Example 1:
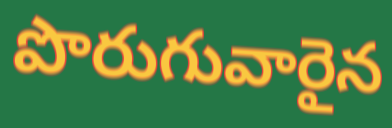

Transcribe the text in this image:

పొరుగువారైన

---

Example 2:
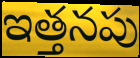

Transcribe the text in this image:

ఇత్తనపు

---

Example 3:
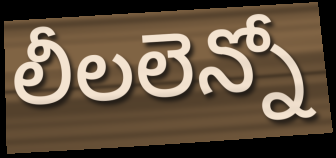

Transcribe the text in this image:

లీలలెన్నో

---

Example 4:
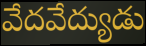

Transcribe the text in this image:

వేదవేద్యుడు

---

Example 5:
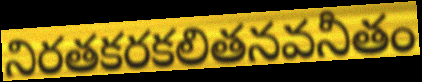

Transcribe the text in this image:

నిరతకరకలితనవనీతం